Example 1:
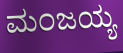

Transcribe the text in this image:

ಮಂಜಯ್ಯ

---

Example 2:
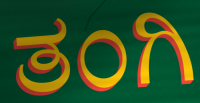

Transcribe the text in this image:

ತಂಗಿ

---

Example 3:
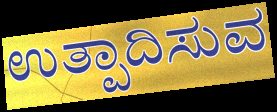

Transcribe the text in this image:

ಉತ್ಪಾದಿಸುವ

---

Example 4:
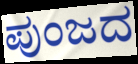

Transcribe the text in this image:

ಪುಂಜದ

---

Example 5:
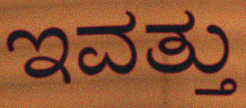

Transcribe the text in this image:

ಇವತ್ತು